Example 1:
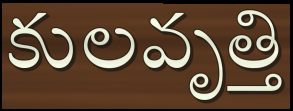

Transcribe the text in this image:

కులవృత్తి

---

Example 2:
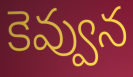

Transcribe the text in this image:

కెవ్వున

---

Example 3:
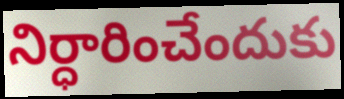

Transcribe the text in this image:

నిర్ధారించేందుకు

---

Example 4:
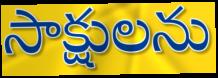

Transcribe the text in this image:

సాక్షులను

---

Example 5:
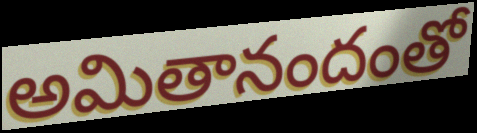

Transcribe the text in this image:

అమితానందంతో